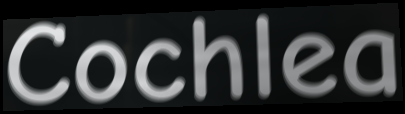
Cochlea